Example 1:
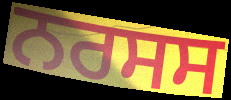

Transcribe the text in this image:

ਨਰਸਸ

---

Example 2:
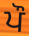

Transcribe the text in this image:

ਪੌ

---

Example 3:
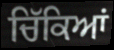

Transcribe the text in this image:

ਚਿੱਕਿਆਂ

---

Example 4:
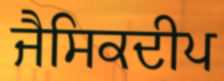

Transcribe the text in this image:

ਜੈਸਿਕਦੀਪ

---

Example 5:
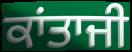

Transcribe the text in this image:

ਕਾਂਤਾਜੀ